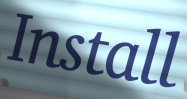
Install